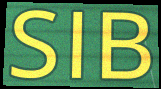
SIB